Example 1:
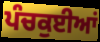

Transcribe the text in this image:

ਪੰਚਕੁਈਆਂ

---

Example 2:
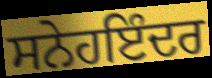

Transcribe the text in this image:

ਸਨੇਹਇੰਦਰ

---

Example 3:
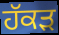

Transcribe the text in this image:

ਹੱਕੜ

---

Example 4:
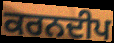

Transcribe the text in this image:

ਕਰਨਦੀਪ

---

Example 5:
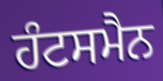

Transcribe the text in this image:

ਹੰਟਸਮੈਨ